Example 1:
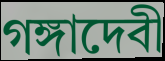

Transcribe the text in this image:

গঙ্গাদেবী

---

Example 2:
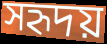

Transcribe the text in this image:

সহৃদয়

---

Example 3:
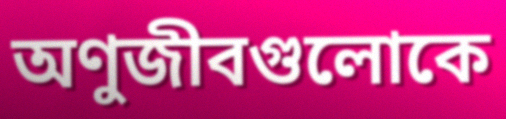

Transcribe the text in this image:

অণুজীবগুলোকে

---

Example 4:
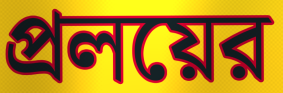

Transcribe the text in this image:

প্রলয়ের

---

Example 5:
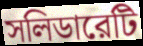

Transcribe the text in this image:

সলিডারেটি